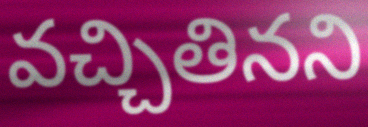
వచ్చితినని